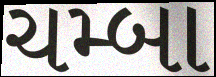
ચમ્બા